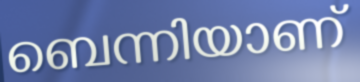
ബെന്നിയാണ്